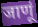
जाणूं